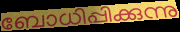
ബോധിപ്പിക്കുന്നു